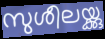
സുശീലയ്ക്കു